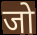
जो